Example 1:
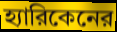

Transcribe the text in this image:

হ্যারিকেনের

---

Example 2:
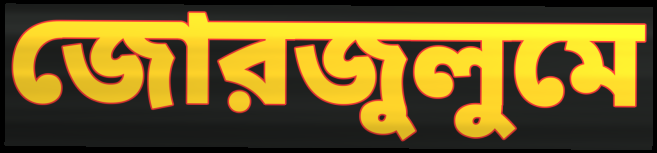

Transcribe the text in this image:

জোরজুলুমে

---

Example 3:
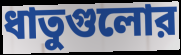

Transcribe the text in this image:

ধাতুগুলোর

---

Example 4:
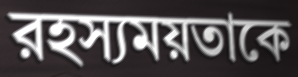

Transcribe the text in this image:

রহস্যময়তাকে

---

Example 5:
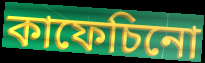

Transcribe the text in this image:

কাফেচিনো